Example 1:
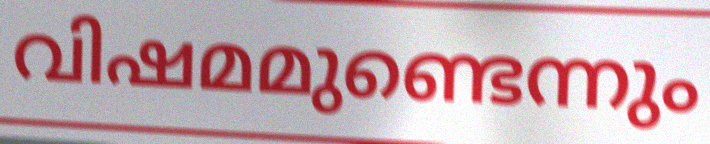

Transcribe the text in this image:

വിഷമമുണ്ടെന്നും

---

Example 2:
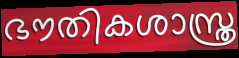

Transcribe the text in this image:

ഭൗതികശാസ്ത്ര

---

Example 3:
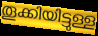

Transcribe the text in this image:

തൂക്കിയിട്ടുള്ള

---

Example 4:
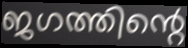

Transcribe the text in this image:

ജഗത്തിന്റെ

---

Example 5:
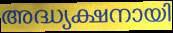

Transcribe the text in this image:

അദ്ധ്യക്ഷനായി